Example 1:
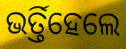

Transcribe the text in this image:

ଭର୍ତ୍ତିହେଲେ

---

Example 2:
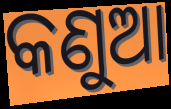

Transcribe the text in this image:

କଣୁଆ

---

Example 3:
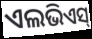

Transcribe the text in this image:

ଏଲଭିଏସ୍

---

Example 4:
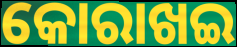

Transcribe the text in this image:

କୋରାଖଇ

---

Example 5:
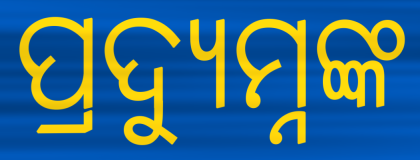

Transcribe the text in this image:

ପ୍ରଦ୍ୟୁମ୍ନଙ୍କ